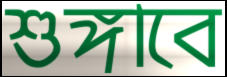
শুঙ্গাবে